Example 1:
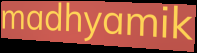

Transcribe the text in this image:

madhyamik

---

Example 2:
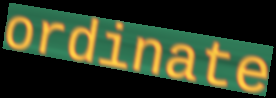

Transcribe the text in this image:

ordinate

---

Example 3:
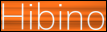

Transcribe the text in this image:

Hibino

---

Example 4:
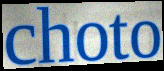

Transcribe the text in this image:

choto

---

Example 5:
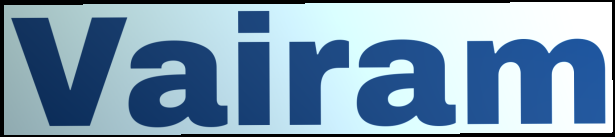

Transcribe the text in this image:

Vairam